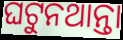
ଘଟୁନଥାନ୍ତା